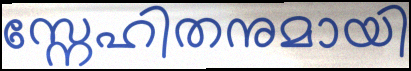
സ്നേഹിതനുമായി